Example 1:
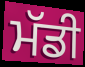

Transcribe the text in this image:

ਮੱਡੀ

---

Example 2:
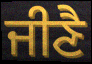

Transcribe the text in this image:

ਜੀਣੈ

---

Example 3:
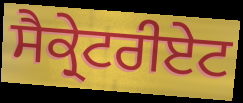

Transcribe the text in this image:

ਸੈਕ੍ਰੇਟਰੀਏਟ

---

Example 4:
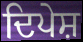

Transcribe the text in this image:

ਦਿਪੇਸ਼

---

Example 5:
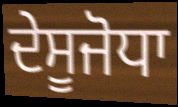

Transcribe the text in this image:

ਦੇਸੂਜੋਧਾ